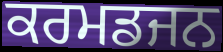
ਕਰਮਡਜਨ